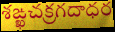
శఙ్ఖచక్రగదాధర